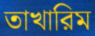
তাখারিম